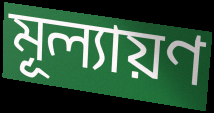
মূল্যায়ণ